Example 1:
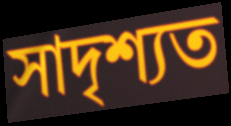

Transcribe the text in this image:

সাদৃশ্যত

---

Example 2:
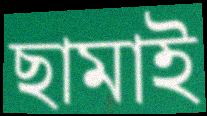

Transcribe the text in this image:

ছামাই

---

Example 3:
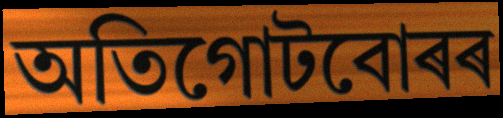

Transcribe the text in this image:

অতিগোটবোৰৰ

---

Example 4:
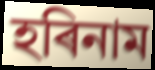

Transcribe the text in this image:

হৰিনাম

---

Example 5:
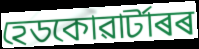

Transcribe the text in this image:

হেডকোৱাৰ্টাৰৰ